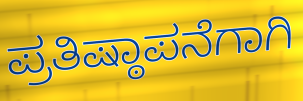
ಪ್ರತಿಷ್ಠಾಪನೆಗಾಗಿ